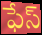
ఫేస్